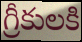
గ్రీకులకి